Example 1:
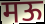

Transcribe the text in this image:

मऊ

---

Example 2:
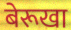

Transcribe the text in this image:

बेरूखा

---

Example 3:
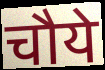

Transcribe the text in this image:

चौये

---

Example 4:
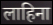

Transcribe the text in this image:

लाहिना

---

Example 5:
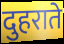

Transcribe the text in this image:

दुहराते